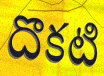
దొకటి